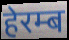
हेरम्ब